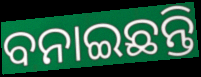
ବନାଇଛନ୍ତି